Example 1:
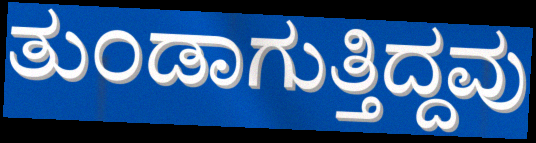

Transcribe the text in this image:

ತುಂಡಾಗುತ್ತಿದ್ದವು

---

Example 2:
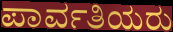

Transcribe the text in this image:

ಪಾರ್ವತಿಯರು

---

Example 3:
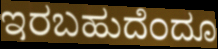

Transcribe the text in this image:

ಇರಬಹುದೆಂದೂ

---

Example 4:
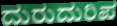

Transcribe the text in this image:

ದುರುದುರಿಪ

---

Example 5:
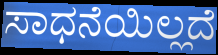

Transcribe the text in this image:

ಸಾಧನೆಯಿಲ್ಲದೆ